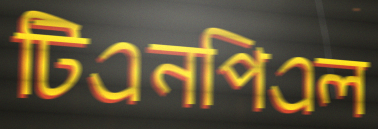
টিএনপিএল